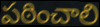
పఠించాలి